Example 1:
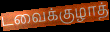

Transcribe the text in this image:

டவைக்குழாத்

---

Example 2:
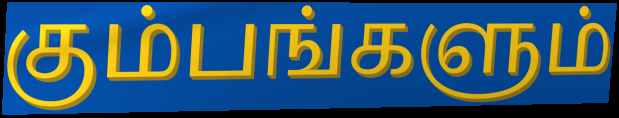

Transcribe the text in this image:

கும்பங்களும்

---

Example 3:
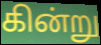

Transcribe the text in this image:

கின்று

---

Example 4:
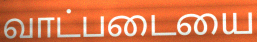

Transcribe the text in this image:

வாட்படையை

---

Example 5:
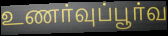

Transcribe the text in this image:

உணர்வுப்பூர்வ